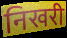
निखरी